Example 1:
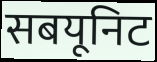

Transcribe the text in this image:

सबयूनिट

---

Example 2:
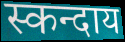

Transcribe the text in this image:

स्कन्दाय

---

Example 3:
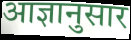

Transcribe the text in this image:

आज्ञानुसार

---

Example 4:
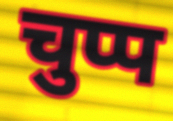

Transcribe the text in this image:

चुप्प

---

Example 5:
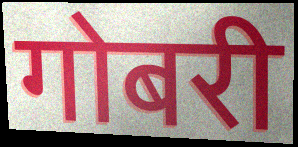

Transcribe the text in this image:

गोबरी